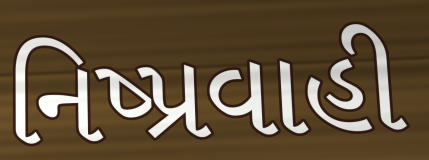
નિષ્પ્રવાહી